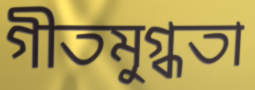
গীতমুগ্ধতা